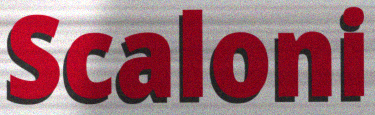
Scaloni